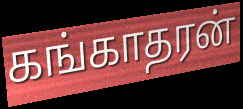
கங்காதரன்